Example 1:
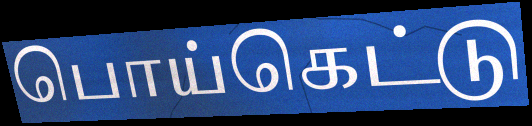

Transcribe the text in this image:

பொய்கெட்டு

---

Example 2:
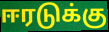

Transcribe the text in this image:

ஈரடுக்கு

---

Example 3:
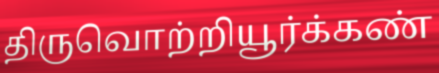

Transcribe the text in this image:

திருவொற்றியூர்க்கண்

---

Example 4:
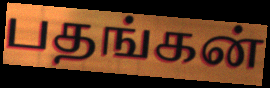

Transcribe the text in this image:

பதங்கன்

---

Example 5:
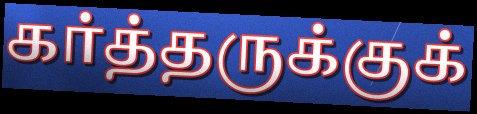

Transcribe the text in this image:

கர்த்தருக்குக்